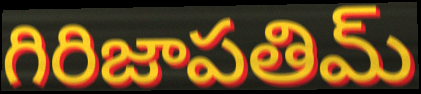
గిరిజాపతిమ్